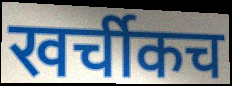
खर्चीकच